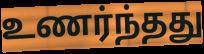
உணர்ந்தது